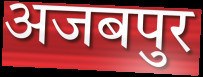
अजबपुर